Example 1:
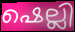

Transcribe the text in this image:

ഷെല്ലി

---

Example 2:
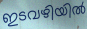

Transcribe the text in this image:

ഇടവഴിയിൽ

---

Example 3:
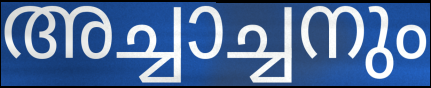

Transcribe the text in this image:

അച്ചാച്ചനും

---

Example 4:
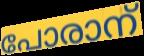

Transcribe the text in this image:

പോരാന്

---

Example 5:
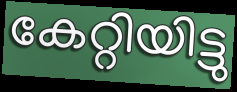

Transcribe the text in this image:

കേറ്റിയിട്ടു